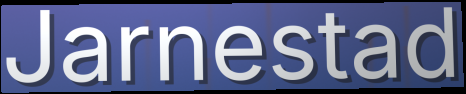
Jarnestad